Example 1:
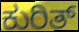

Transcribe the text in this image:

ಕುರಿತ್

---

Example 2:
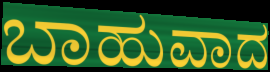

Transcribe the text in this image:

ಬಾಹುವಾದ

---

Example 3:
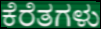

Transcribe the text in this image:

ಕೆರೆತಗಳು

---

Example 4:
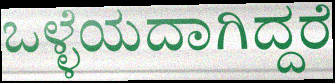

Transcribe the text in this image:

ಒಳ್ಳೆಯದಾಗಿದ್ದರೆ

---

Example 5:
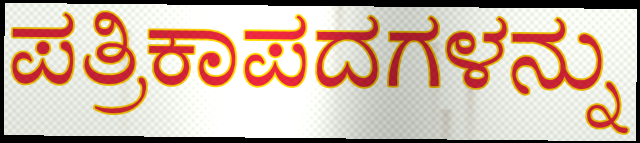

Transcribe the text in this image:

ಪತ್ರಿಕಾಪದಗಳನ್ನು